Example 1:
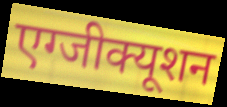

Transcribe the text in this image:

एग्जीक्यूशन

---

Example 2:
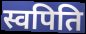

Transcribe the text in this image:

स्वपिति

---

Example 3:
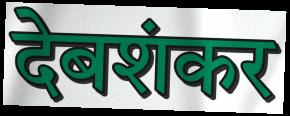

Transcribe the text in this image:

देबशंकर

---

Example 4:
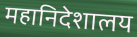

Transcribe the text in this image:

महानिदेशालय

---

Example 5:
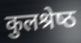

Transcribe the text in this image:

कुलश्रेष्‍ठ